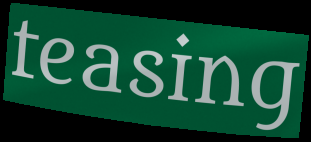
teasing